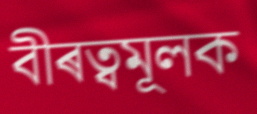
বীৰত্বমূলক